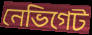
নেভিগেট